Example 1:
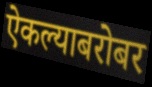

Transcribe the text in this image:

ऐकल्याबरोबर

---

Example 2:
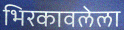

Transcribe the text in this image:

भिरकावलेला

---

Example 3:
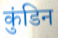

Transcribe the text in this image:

कुंडिन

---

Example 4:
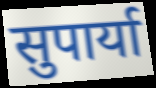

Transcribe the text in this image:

सुपार्या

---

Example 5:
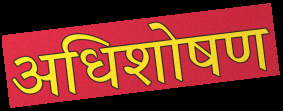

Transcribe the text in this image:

अधिशोषण